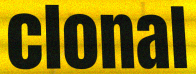
clonal